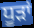
ਧੂੜਾਂ